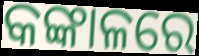
କଙ୍କାଳରେ